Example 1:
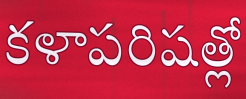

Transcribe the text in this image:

కళాపరిషత్లో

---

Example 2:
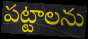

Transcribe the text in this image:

పట్టాలను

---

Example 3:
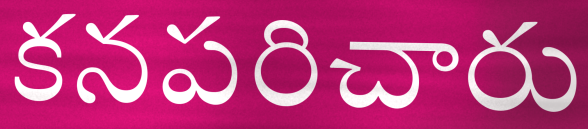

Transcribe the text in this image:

కనపరిచారు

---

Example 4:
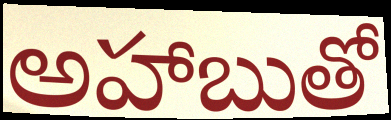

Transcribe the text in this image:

అహాబుతో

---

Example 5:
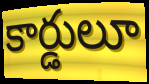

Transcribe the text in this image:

కార్డులూ